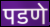
पडणे